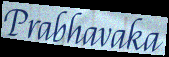
Prabhavaka